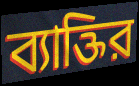
ব্যাক্তির